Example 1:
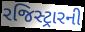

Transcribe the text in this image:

રજિસ્ટ્રારની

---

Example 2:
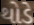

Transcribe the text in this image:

થોડે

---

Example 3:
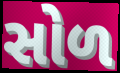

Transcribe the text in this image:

સોળ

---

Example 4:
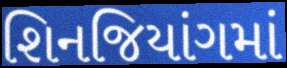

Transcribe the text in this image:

શિનજિયાંગમાં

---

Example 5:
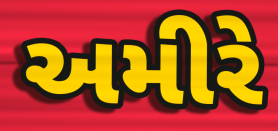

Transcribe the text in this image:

અમીરે